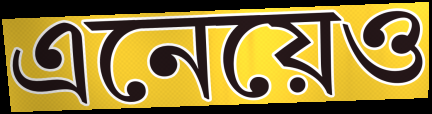
এনেয়েও